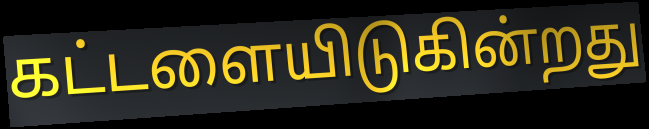
கட்டளையிடுகின்றது